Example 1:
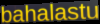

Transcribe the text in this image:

bahalastu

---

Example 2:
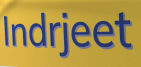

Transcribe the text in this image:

Indrjeet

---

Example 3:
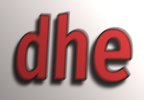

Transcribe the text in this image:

dhe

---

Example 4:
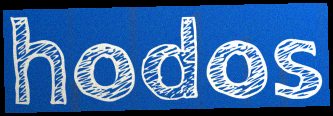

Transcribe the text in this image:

hodos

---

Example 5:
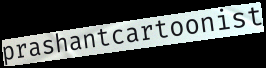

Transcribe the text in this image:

prashantcartoonist